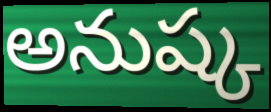
అనుష్క